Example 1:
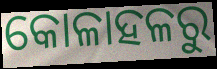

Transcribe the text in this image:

କୋଳାହଳରୁ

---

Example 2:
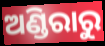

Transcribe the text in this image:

ଅଣ୍ଡିରାରୁ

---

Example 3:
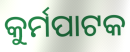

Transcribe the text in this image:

କୁର୍ମପାଟକ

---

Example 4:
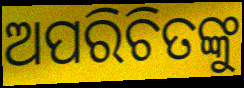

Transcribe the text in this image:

ଅପରିଚିତଙ୍କୁ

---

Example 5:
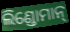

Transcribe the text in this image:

ଲିଣ୍ଡୋମାନ୍